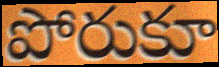
పోరుకూ